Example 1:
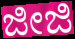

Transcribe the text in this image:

ಜೀಜಿ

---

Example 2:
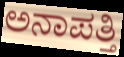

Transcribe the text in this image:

ಅನಾಪತ್ತಿ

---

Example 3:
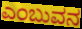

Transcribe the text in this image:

ಎಂಬುವನ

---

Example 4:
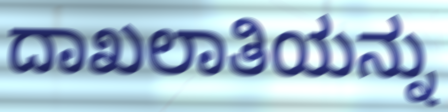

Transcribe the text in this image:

ದಾಖಲಾತಿಯನ್ನು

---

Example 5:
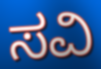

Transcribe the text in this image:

ಸವಿ